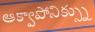
ఆక్వాపోనిక్స్ను